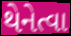
થેનેત્વા